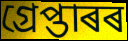
গ্ৰেপ্তাৰৰ